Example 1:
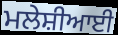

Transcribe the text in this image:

ਮਲੇਸ਼ੀਆਈ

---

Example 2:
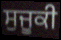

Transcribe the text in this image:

ਸੁਜੂਕੀ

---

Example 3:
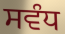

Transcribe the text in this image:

ਸਵੰਧ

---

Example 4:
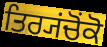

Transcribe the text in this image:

ਤਿਰ੍ਯਂਚੋਂਕੋ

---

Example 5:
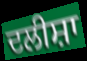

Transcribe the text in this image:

ਦਲੀਸ਼ਾ